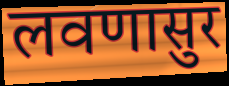
लवणासुर